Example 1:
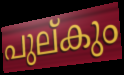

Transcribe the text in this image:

പുല്കും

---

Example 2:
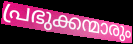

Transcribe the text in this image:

പ്രഭുക്കന്മാരും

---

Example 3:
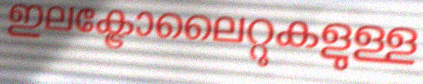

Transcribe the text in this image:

ഇലക്ട്രോലൈറ്റുകളുള്ള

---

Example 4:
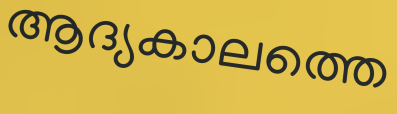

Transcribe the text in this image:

ആദ്യകാലത്തെ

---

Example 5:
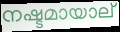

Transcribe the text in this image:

നഷ്ടമായാല്